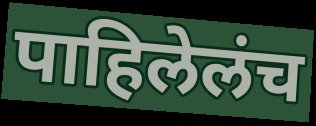
पाहिलेलंच